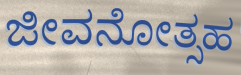
ಜೀವನೋತ್ಸಹ